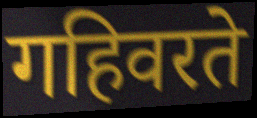
गहिवरते